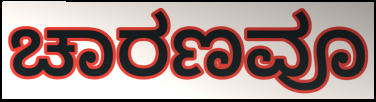
ಚಾರಣವೂ